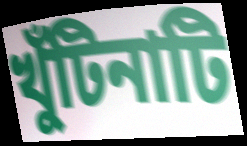
খুঁটিনাটি